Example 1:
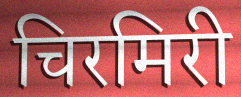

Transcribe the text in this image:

चिरमिरी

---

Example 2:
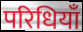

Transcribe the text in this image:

परिधियाँ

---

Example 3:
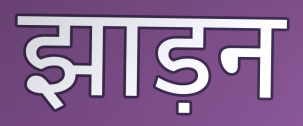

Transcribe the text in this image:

झाड़न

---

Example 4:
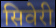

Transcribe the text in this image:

सिवेरी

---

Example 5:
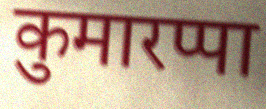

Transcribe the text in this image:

कुमारप्पा